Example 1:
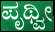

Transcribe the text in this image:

ಪೃಥ್ವೀ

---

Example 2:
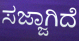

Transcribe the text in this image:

ಸಜ್ಜಾಗಿದೆ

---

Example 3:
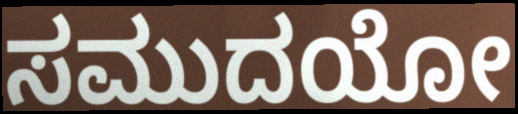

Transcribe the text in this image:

ಸಮುದಯೋ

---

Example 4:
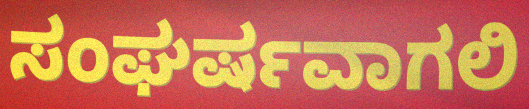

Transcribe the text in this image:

ಸಂಘರ್ಷವಾಗಲಿ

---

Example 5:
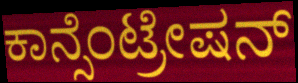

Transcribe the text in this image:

ಕಾನ್ಸೆಂಟ್ರೇಷನ್